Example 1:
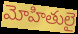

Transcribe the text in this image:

మోహితులై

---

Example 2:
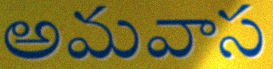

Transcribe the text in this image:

అమవాస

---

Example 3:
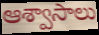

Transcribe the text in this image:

ఆశ్వాసాలు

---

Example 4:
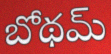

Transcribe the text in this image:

బోథమ్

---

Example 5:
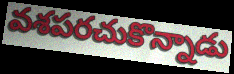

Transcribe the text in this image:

వశపరచుకొన్నాడు